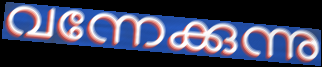
വന്നേക്കുന്നു